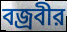
বজ্রবীর